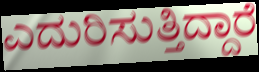
ಎದುರಿಸುತ್ತಿದ್ದಾರೆ